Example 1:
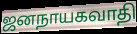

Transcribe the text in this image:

ஜனநாயகவாதி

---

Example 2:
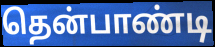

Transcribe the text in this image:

தென்பாண்டி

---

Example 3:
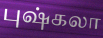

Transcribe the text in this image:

புஷ்கலா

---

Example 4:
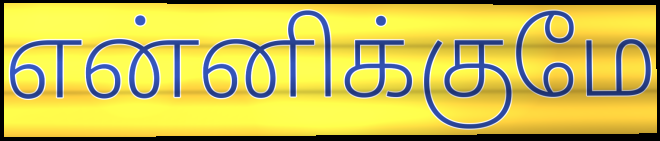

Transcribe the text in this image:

என்னிக்குமே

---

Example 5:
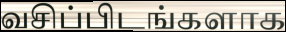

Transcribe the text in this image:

வசிப்பிடங்களாக